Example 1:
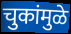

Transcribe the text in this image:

चुकांमुळे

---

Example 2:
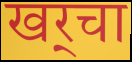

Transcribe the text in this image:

खर्चा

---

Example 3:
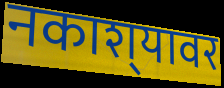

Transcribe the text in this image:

नकाश्यावर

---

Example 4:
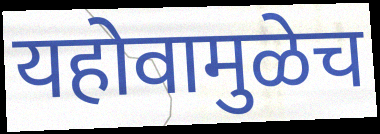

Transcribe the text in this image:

यहोवामुळेच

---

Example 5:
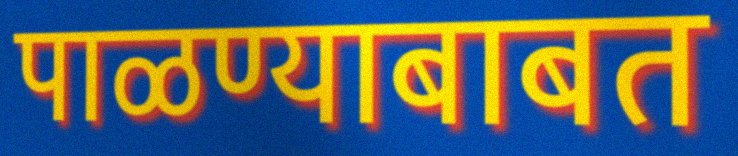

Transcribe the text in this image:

पाळण्याबाबत